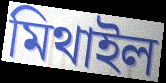
মিথাইল